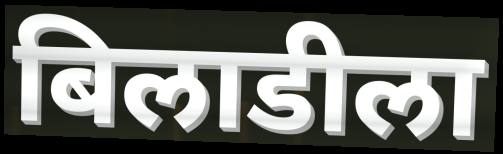
बिलाडीला